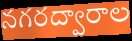
నగరద్వారాల